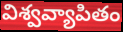
విశ్వవ్యాపితం